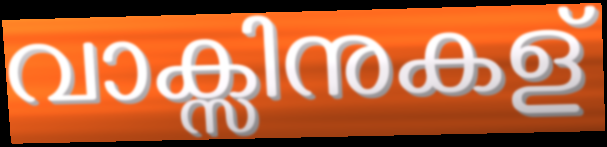
വാക്സിനുകള്